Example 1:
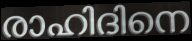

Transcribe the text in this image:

രാഹിദിനെ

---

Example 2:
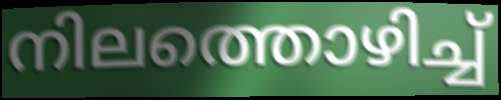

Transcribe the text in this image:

നിലത്തൊഴിച്ച്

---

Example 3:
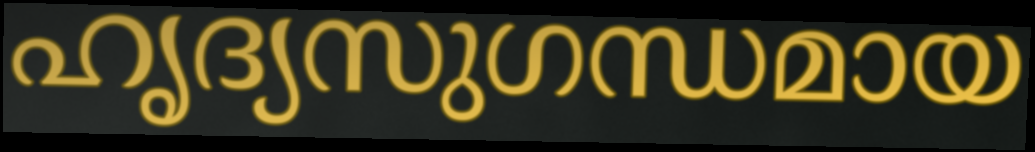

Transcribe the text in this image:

ഹൃദ്യസുഗന്ധമായ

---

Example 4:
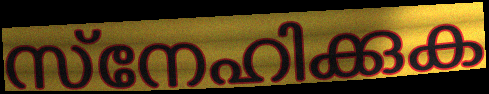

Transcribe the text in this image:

സ്‌നേഹിക്കുക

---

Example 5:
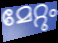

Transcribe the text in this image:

മേറ്റും